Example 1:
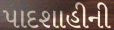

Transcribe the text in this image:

પાદશાહીની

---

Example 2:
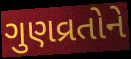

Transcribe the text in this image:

ગુણવ્રતોને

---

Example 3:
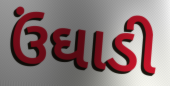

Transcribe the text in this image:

ઉંઘાડી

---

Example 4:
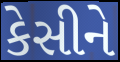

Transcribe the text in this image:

કેસીને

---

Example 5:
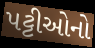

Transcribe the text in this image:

પટ્ટીઓનો